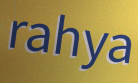
rahya